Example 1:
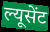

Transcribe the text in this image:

ल्यूसेंट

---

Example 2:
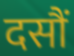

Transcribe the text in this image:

दसौं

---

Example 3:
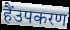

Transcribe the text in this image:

हैंउपकरण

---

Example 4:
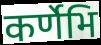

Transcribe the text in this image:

कर्णेभि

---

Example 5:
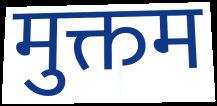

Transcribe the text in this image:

मुक्तम